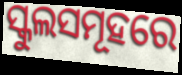
ସ୍କୁଲସମୂହରେ